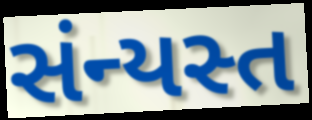
સંન્યસ્ત